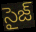
సైజ్